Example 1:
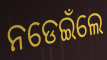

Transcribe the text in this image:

ନଡେଇଁଲେ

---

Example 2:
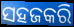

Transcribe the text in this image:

ସହଜକରି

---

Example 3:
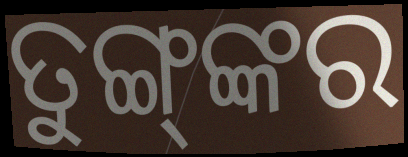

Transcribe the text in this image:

ତୁଙ୍ଗ୍‍ଙ୍କର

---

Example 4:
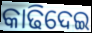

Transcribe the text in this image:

କାଢିଦେଇ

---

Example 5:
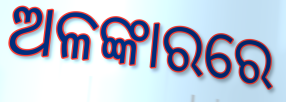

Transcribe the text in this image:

ଅଳଙ୍କାରରେ